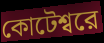
কোটেশ্বরে